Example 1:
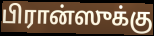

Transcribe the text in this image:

பிரான்ஸுக்கு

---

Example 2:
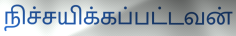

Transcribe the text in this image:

நிச்சயிக்கப்பட்டவன்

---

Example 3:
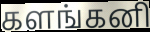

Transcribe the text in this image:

களங்கனி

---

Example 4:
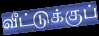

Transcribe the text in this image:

வீட்டுக்குப்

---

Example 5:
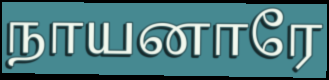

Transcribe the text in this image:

நாயனாரே